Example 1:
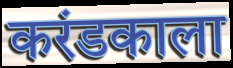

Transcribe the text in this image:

करंडकाला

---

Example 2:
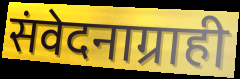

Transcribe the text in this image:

संवेदनाग्राही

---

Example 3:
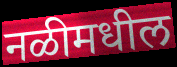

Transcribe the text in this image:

नळीमधील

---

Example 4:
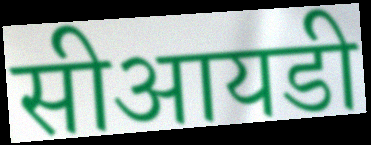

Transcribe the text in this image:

सीआयडी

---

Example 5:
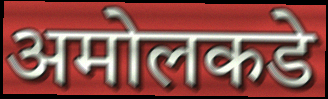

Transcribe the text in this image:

अमोलकडे